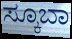
ಸ್ಕೂಬಾ